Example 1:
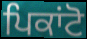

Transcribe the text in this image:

ਪਿਕਾਂਟੋ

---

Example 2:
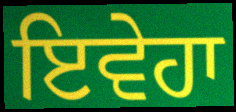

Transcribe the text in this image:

ਇਵੇਹਾ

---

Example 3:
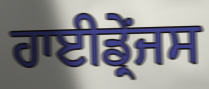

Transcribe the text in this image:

ਹਾਈਡ੍ਰੇਂਜਸ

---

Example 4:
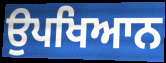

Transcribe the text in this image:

ਉਪਖਿਆਨ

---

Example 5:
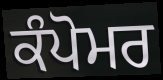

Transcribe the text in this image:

ਕੰਪੋਮਰ